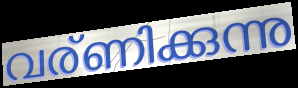
വര്ണിക്കുന്നു